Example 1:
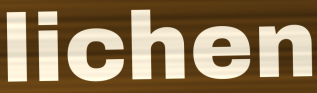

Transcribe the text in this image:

lichen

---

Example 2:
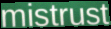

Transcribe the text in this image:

mistrust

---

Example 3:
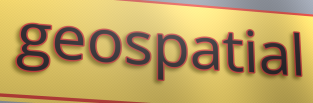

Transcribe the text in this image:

geospatial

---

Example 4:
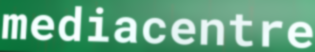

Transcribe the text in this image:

mediacentre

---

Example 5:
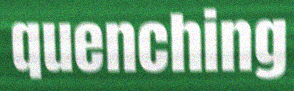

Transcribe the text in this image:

quenching